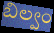
బిల్వం